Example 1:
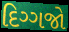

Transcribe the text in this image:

દિગ્ગજો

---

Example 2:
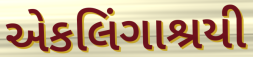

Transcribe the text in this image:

એકલિંગાશ્રયી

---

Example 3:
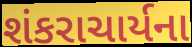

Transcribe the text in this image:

શંકરાચાર્યના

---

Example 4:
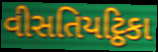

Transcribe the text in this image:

વીસતિયટ્ઠિકા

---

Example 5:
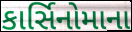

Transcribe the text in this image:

કાર્સિનોમાના